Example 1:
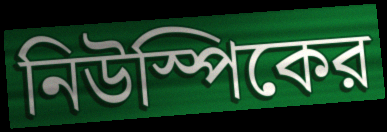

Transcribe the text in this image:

নিউস্পিকের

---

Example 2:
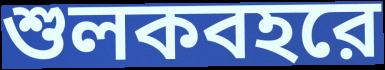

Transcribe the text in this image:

শুলকবহরে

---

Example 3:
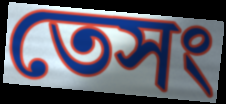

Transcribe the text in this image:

তেসং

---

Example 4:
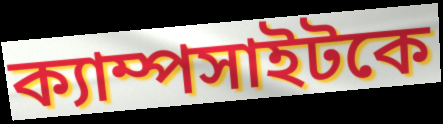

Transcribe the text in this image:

ক্যাম্পসাইটকে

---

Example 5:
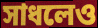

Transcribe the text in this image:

সাধলেও